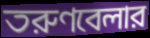
তরুণবেলার